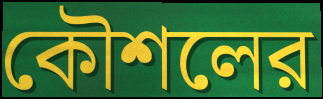
কৌশলের